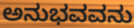
ಅನುಭವವನು